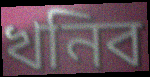
খনিব